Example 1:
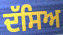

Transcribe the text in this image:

ਦੱਸਿਅ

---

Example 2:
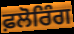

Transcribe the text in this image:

ਫ਼ਲੋਰਿੰਗ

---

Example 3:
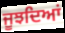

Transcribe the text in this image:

ਜੂਝਦਿਆਂ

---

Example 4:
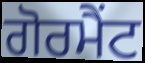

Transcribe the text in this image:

ਗੋਰਮੈਂਟ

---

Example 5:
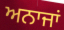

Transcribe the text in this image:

ਅਨਾਜਾਂ